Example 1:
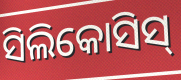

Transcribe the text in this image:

ସିଲିକୋସିସ୍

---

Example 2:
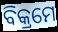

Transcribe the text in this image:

ବିକ୍ରମେ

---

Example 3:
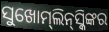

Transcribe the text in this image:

ସୁଖୋମ୍‍ଲିନ୍‍ସ୍କିଙ୍କର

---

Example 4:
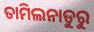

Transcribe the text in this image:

ତାମିଲନାଡୁରୁ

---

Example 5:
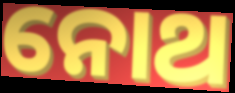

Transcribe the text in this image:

ନୋଥ